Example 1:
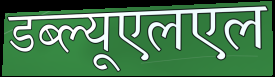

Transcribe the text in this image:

डब्ल्यूएलएल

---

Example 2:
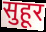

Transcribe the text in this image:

सुहूर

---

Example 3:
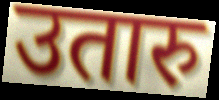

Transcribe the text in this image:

उतारु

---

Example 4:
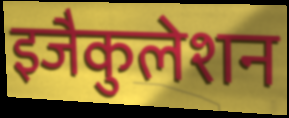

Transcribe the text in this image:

इजैकुलेशन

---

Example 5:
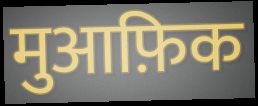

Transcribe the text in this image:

मुआफ़िक